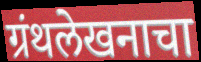
ग्रंथलेखनाचा